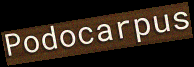
Podocarpus